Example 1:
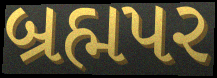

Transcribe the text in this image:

બ્રહ્મપર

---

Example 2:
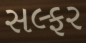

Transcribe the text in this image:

સલ્ફર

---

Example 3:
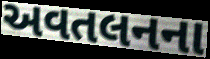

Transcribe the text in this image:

અવતલનના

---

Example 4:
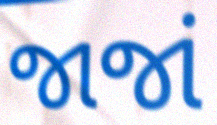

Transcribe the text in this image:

જાજાં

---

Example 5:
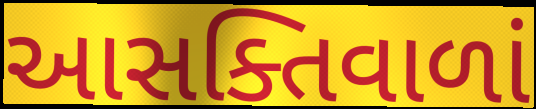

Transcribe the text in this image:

આસક્તિવાળાં